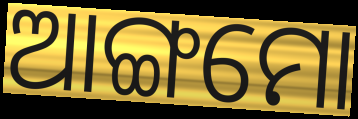
ଆଙ୍ଗମୋ